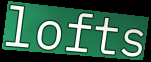
lofts